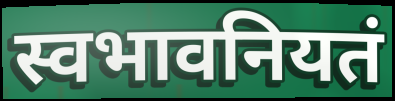
स्वभावनियतं